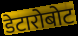
डेटारोबोट